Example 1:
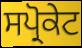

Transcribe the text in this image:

ਸਪ੍ਰੋਕੇਟ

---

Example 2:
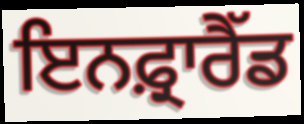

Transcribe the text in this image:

ਇਨਫ਼੍ਰਾਰੈੱਡ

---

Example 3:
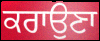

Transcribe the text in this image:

ਕਰਾਉਣਾ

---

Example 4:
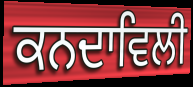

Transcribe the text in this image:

ਕਨਦਾਵਿਲੀ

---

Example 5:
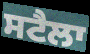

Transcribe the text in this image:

ਸਟੈਲਾ